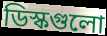
ডিস্কগুলো